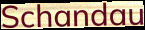
Schandau